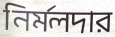
নির্মলদার